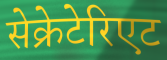
सेक्रेटेरिएट